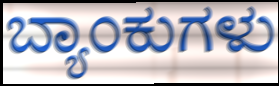
ಬ್ಯಾಂಕುಗಳು